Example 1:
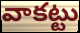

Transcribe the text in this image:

వాకట్టు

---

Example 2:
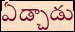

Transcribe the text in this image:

ఏడ్చాడు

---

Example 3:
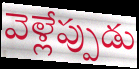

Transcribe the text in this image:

వెళ్లేప్పుడు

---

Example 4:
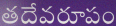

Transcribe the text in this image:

తదేవరూపం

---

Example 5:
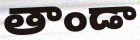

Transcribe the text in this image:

తాండా